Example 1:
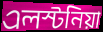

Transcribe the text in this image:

এলস্টনিয়া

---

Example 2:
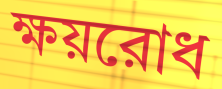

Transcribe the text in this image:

ক্ষয়রোধ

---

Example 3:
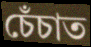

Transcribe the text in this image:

চেঁচাত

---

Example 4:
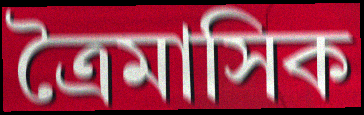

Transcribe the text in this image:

ত্রৈমাসিক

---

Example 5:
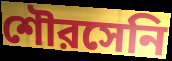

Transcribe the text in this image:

শৌরসেনি